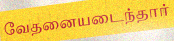
வேதனையடைந்தார்